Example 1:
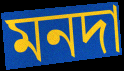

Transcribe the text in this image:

মনদা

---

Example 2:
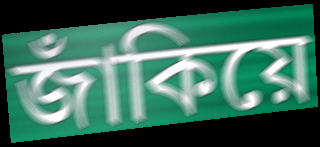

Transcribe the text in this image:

জাঁকিয়ে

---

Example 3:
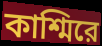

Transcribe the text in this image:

কাশ্মিরে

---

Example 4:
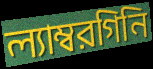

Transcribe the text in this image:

ল্যাম্বরগিনি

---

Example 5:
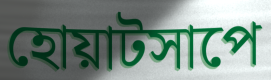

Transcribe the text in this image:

হোয়াটসাপে